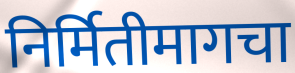
निर्मितीमागचा